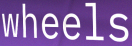
wheels